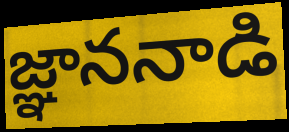
జ్ఞాననాడి